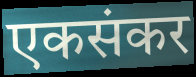
एकसंकर